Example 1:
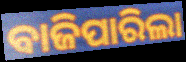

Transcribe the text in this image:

ବାଜିପାରିଲା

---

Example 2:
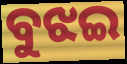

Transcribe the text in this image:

ବୁଝଇ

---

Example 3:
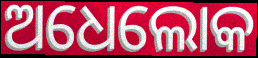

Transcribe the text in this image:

ଅଧେଲୋକ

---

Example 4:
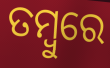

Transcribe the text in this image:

ତମ୍ବୁରେ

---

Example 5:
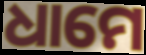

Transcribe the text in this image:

ଧାମେ